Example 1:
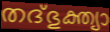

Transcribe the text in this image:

തദ്ഭുക്ത്യാ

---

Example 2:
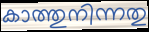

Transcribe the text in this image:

കാത്തുനിന്നതു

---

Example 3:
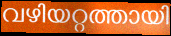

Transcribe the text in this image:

വഴിയറ്റത്തായി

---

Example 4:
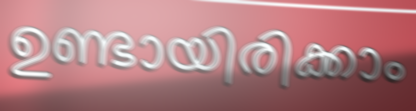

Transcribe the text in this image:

ഉണ്ടായിരിക്കാം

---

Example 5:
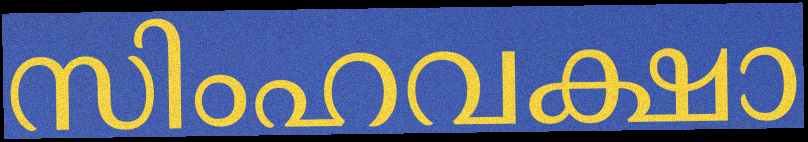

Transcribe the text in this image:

സിംഹവക്ഷാ